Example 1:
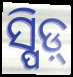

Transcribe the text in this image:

ସ୍ପିଡ଼୍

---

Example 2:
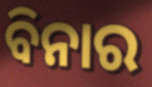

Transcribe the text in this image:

ବିନାର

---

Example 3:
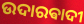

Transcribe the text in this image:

ଉଦାରଵାଦୀ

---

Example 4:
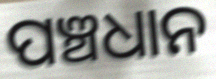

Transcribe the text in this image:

ପଞ୍ଚଧାନ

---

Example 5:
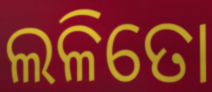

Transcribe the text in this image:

ଲଳିତୋ